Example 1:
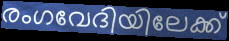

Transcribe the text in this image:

രംഗവേദിയിലേക്ക്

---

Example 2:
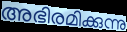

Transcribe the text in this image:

അഭിരമിക്കുന്നു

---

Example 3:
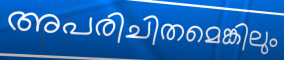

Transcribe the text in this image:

അപരിചിതമെങ്കിലും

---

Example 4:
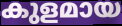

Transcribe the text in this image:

കുളമായ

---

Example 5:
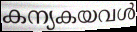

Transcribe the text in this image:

കന്യകയവൾ